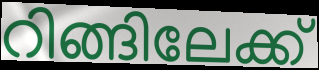
റിങ്ങിലേക്ക്